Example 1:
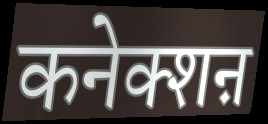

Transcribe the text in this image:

कनेक्शऩ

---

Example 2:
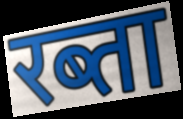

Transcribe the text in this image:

रब्ता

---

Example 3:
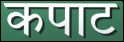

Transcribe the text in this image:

कपाट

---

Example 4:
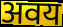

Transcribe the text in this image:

अवय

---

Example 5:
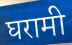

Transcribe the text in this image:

घरामी